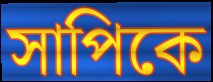
সাপিকে